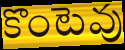
కొంటెవు